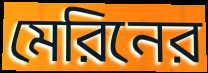
মেরিনের